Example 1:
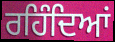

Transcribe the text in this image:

ਰਹਿੰਦਿਆਂ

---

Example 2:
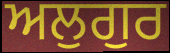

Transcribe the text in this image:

ਅਲੁਗੁਰ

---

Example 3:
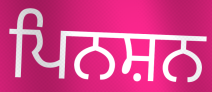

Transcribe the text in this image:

ਪਿਨਸ਼ਨ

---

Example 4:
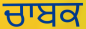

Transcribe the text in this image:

ਚਾਬਕ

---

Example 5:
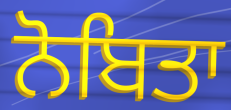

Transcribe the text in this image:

ਨੋਬਿਤਾ